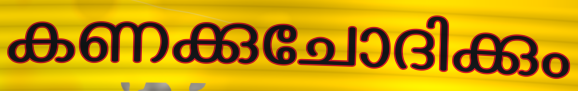
കണക്കുചോദിക്കും